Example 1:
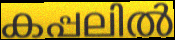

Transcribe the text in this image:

കപ്പലിൽ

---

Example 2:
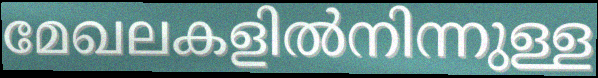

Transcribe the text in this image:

മേഖലകളിൽനിന്നുള്ള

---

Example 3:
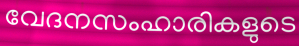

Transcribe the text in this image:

വേദനസംഹാരികളുടെ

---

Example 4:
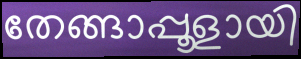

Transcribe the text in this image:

തേങ്ങാപ്പൂളായി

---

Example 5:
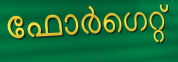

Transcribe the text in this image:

ഫോർഗെറ്റ്